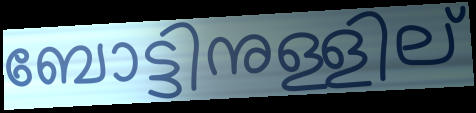
ബോട്ടിനുള്ളില്